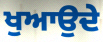
ਖੁਆਉਦੇ